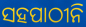
ସହପାଠୀନି